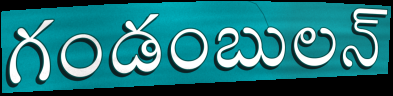
గండంబులన్